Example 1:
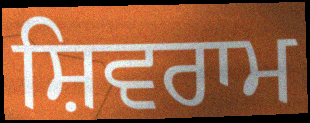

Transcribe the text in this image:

ਸ਼ਿਵਰਾਮ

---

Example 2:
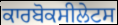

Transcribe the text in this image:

ਕਾਰਬੋਕਸੀਲੇਟਸ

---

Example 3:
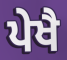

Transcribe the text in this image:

ਪੇਖੈ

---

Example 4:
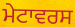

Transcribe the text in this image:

ਮੇਟਾਵਰਸ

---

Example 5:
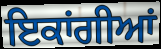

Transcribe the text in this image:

ਇਕਾਂਗੀਆਂ